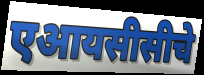
एआयसीसीचे